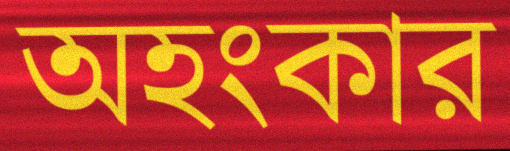
অহংকার